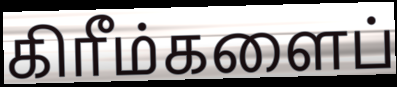
கிரீம்களைப்